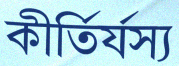
কীর্তির্যস্য